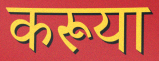
करूया